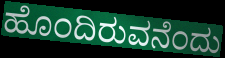
ಹೊಂದಿರುವನೆಂದು